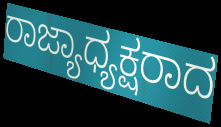
ರಾಜ್ಯಾಧ್ಯಕ್ಷರಾದ